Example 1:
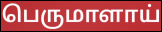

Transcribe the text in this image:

பெருமாளாய்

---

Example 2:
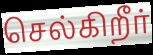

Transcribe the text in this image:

செல்கிறீர்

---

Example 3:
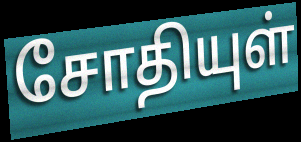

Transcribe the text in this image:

சோதியுள்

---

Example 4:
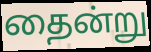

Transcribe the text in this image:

தைன்று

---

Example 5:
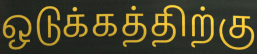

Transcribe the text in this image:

ஒடுக்கத்திற்கு